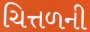
ચિત્તળની